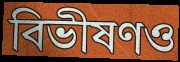
বিভীষণও